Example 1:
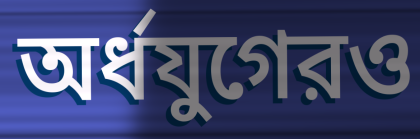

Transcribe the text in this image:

অর্ধযুগেরও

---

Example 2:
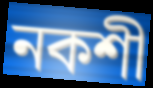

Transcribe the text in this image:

নকশী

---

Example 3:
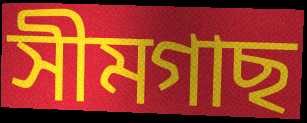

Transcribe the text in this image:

সীমগাছ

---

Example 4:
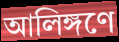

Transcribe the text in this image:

আলিঙ্গণে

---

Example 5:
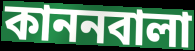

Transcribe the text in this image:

কাননবালা